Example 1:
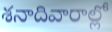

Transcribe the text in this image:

శనాదివారాల్లో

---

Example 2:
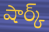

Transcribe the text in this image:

షార్క్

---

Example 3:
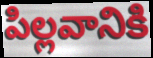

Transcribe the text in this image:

పిల్లవానికి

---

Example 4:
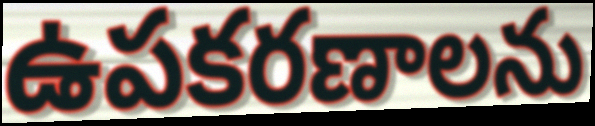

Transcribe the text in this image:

ఉపకరణాలను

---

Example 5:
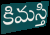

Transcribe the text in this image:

కిమస్తి